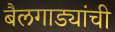
बैलगाड्यांची